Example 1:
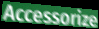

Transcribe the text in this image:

Accessorize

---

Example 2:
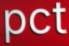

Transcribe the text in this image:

pct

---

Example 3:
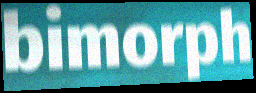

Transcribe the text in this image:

bimorph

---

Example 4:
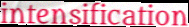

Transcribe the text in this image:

intensification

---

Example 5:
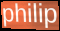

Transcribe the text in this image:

philip